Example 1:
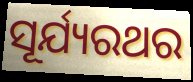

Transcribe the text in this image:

ସୂର୍ଯ୍ୟରଥର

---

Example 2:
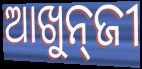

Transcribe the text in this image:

ଆଖୁନ୍‍ଜୀ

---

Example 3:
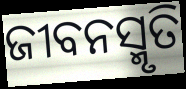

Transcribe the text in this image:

ଜୀବନସ୍ମୃତି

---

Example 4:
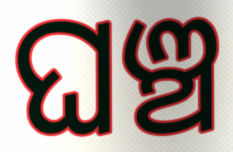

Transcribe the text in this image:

ଘଞ୍ଚ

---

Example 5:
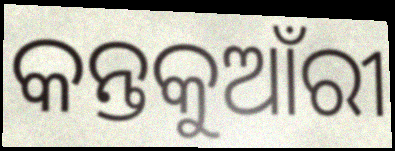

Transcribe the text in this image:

କନ୍ତକୁଆଁରୀ